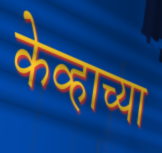
केव्हाच्या